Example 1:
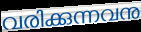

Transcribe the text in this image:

വരിക്കുന്നവനു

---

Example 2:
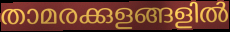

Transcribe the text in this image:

താമരക്കുളങ്ങളിൽ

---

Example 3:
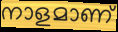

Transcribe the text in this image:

നാളമാണ്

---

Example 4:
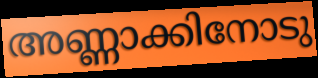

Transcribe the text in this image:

അണ്ണാക്കിനോടു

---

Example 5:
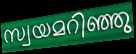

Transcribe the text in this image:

സ്വയമറിഞ്ഞു